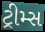
ટ્રીમ્સ